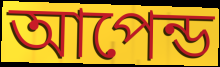
আপেন্ড